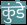
कुंडे